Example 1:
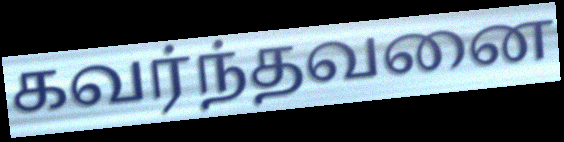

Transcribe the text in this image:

கவர்ந்தவனை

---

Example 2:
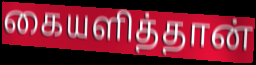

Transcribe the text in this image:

கையளித்தான்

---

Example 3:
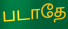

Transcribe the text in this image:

படாதே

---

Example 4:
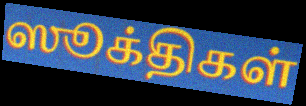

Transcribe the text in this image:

ஸூக்திகள்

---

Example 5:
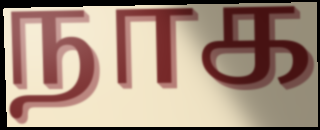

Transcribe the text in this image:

நாக